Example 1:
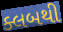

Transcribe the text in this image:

ક્લબથી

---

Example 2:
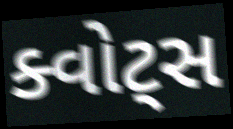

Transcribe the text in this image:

ક્વોટ્સ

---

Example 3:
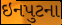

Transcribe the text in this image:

ઇનપુટના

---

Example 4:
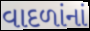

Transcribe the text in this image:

વાદળાંનાં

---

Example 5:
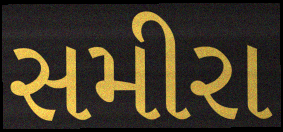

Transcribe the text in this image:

સમીરા